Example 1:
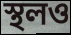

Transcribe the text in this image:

স্থলও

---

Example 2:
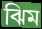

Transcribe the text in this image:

ঝিম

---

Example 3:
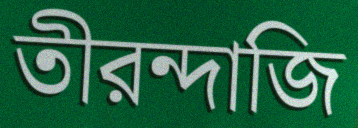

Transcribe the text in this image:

তীরন্দাজি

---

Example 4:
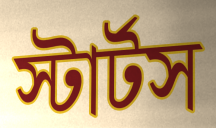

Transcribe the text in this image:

স্টার্টস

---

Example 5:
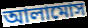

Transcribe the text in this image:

আলামোস